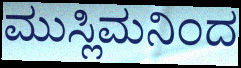
ಮುಸ್ಲಿಮನಿಂದ